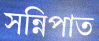
সন্নিপাত